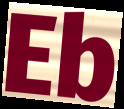
Eb